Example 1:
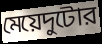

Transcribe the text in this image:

মেয়েদুটোর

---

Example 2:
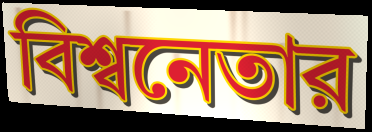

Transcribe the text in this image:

বিশ্বনেতার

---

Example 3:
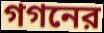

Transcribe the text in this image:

গগনের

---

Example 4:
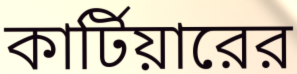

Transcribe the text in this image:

কার্টিয়ারের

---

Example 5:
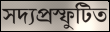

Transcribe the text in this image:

সদ্যপ্রস্ফুটিত